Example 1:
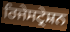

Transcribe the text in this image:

ਰਿਜੇਸਟ੍ਰੇਸ਼ਨ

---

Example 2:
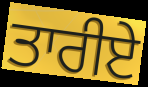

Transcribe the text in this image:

ਤਾਰੀਏ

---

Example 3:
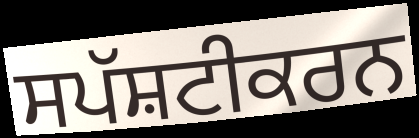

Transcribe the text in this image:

ਸਪੱਸ਼ਟੀਕਰਨ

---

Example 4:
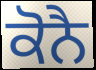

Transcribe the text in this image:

ਕੋਨੈ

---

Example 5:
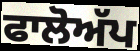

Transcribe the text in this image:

ਫਾਲੋਅੱਪ